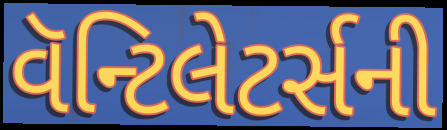
વૅન્ટિલેટર્સની